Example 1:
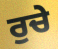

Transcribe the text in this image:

ਰੁਚੇ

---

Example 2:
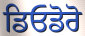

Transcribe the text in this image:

ਡਿਓਡੋਰੋ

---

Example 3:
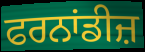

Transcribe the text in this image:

ਫਰਨਾਂਡੀਜ਼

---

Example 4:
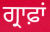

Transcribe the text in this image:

ਗ੍ਰਾਫ਼ਾਂ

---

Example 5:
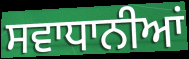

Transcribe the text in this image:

ਸਵਾਧਾਨੀਆਂ